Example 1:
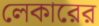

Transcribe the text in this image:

লেকারের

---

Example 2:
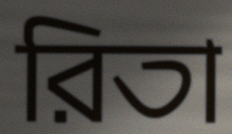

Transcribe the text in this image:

রিতা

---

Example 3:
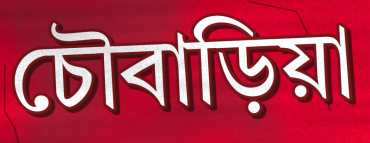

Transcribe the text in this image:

চৌবাড়িয়া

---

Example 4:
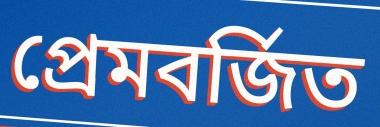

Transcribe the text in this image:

প্রেমবর্জিত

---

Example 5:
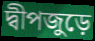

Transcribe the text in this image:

দ্বীপজুড়ে